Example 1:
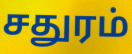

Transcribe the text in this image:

சதுரம்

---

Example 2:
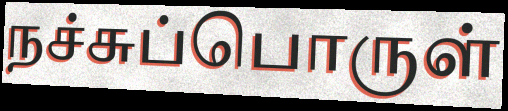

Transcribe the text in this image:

நச்சுப்பொருள்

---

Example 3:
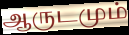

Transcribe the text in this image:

ஆருடமும்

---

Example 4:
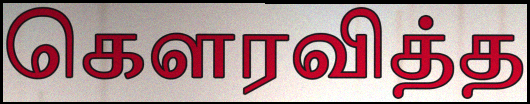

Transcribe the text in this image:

கெளரவித்த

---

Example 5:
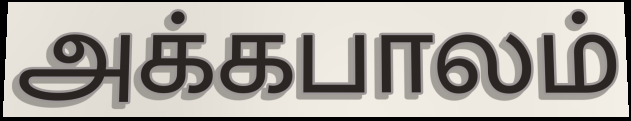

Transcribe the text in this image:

அக்கபாலம்